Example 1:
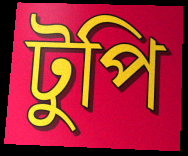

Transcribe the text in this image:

টুপি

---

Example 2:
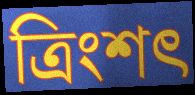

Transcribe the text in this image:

ত্ৰিংশৎ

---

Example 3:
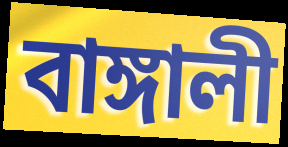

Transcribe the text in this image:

বাঙ্গালী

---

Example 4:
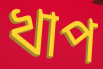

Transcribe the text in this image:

খাপ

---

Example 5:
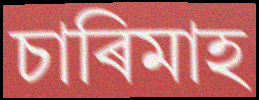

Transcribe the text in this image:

চাৰিমাহ